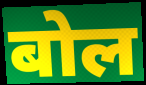
बोल